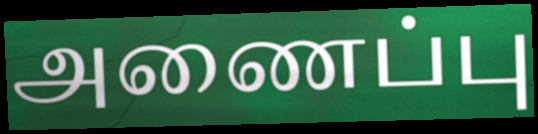
அணைப்பு